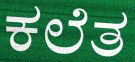
ಕಲೆತ